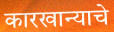
कारखान्याचे